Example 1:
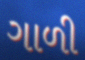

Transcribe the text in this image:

ગાળી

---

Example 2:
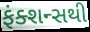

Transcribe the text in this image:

ફંક્શન્સથી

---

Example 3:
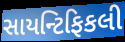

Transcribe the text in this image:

સાયન્ટિફિકલી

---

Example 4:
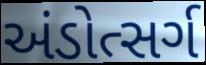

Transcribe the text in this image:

અંડોત્સર્ગ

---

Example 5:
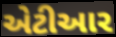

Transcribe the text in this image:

એટીઆર